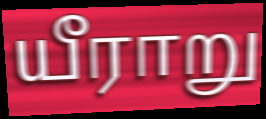
யீராறு